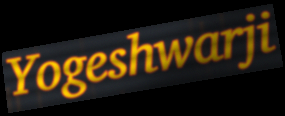
Yogeshwarji